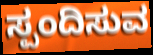
ಸ್ಪಂದಿಸುವ